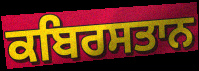
ਕਬਿਰਸਤਾਨ